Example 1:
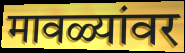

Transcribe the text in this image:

मावळ्यांवर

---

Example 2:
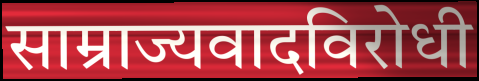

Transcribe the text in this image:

साम्राज्यवादविरोधी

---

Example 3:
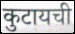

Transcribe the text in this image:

कुटायची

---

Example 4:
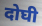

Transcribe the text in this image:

दोघी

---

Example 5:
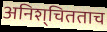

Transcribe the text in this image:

अनिश्चितताच